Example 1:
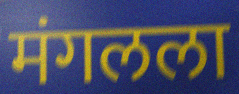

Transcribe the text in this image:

मंगलला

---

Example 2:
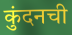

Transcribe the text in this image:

कुंदनची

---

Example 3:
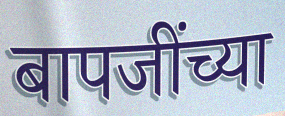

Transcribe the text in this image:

बापजींच्या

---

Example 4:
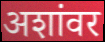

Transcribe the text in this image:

अशांवर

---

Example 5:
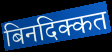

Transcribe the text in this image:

बिनदिक्कत